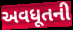
અવધૂતની